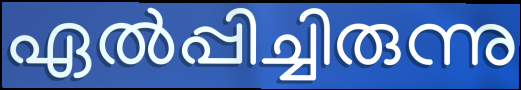
ഏൽപ്പിച്ചിരുന്നു